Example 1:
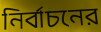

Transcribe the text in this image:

নির্বাচনের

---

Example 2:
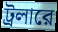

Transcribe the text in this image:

ট্রলারে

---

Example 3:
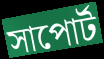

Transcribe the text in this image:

সাপোর্ট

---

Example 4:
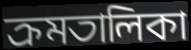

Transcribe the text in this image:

ক্রমতালিকা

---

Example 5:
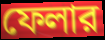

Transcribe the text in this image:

ফেলার